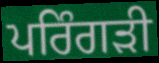
ਪਰਿੰਗੜੀ